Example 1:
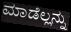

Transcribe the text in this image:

ಮಾಡೆಲ್ಲನ್ನು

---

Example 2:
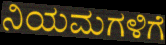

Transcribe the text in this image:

ನಿಯಮಗಳಿಗೆ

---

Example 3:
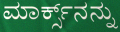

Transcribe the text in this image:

ಮಾರ್ಕ್ಸ್‌ನನ್ನು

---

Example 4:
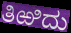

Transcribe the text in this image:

ತಿಱಿದು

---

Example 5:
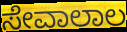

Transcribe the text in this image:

ಸೇವಾಲಾಲ